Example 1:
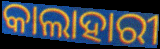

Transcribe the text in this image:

କାଲାହାରୀ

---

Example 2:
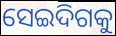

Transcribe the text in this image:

ସେଇଦିଗକୁ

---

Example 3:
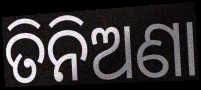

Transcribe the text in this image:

ତିନିଅଣା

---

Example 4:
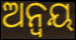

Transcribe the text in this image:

ଅନ୍ଵୟ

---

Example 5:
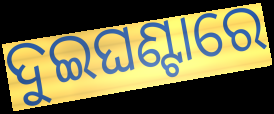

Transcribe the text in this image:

ଦୁଇଘଣ୍ଟାରେ